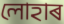
লোহাৰ